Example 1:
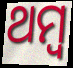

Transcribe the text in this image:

ଥମ୍ବ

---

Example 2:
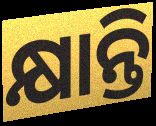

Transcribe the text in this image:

କ୍ଷାନ୍ତି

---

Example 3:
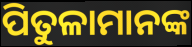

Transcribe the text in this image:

ପିତୁଳାମାନଙ୍କ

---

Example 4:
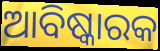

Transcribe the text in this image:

ଆବିଷ୍କାରକ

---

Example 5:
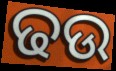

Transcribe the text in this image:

ଢଉ